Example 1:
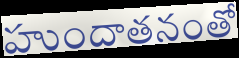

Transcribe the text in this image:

హుందాతనంతో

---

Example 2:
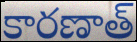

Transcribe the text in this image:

కారణాత్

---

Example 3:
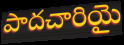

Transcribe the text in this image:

పాదచారియై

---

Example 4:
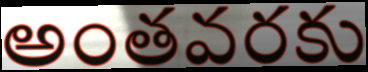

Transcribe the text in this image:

అంతవరకు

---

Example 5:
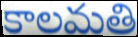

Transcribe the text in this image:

కాలమతి